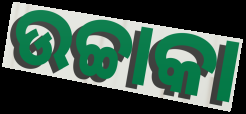
ଉଚ୍ଚାକା